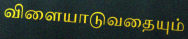
விளையாடுவதையும்